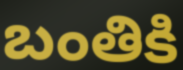
బంతికి